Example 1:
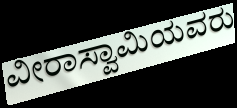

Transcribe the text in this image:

ವೀರಾಸ್ವಾಮಿಯವರು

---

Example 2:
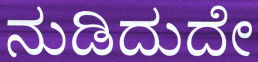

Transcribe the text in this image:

ನುಡಿದುದೇ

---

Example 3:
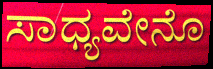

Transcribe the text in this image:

ಸಾಧ್ಯವೇನೊ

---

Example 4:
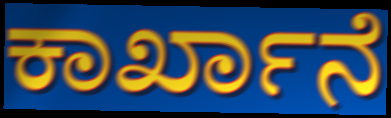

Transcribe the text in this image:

ಕಾರ್ಖಾನೆ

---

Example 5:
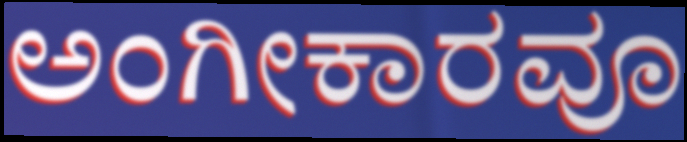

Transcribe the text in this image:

ಅಂಗೀಕಾರವೂ